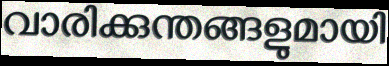
വാരിക്കുന്തങ്ങളുമായി